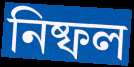
নিষ্ফল